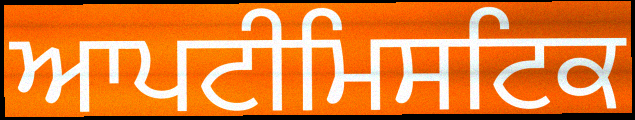
ਆਪਟੀਮਿਸਟਿਕ